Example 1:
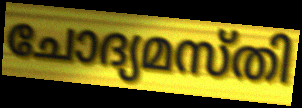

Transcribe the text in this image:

ചോദ്യമസ്തി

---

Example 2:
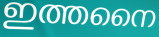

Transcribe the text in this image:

ഇത്തനൈ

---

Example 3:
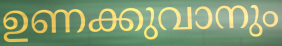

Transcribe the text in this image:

ഉണക്കുവാനും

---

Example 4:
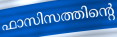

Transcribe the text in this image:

ഫാസിസത്തിന്റെ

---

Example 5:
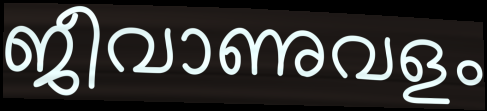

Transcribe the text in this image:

ജീവാണുവളം